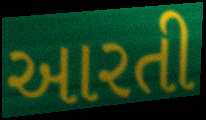
આરતી